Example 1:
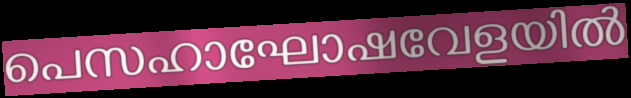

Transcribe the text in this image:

പെസഹാഘോഷവേളയിൽ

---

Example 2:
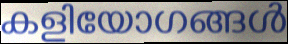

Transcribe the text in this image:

കളിയോഗങ്ങൾ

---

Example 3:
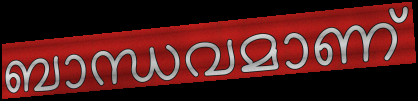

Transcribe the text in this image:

ബാന്ധവമാണ്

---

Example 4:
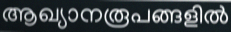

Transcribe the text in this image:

ആഖ്യാനരൂപങ്ങളിൽ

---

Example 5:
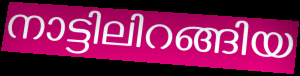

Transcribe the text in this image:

നാട്ടിലിറങ്ങിയ